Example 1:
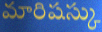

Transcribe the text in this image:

మారిషస్కు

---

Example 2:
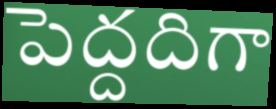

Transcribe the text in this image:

పెద్దదిగా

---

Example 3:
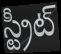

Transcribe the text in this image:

స్ట్రీట్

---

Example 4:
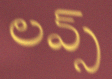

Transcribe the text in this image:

లవ్స్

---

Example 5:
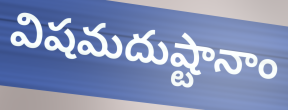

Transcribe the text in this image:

విషమదుష్టానాం